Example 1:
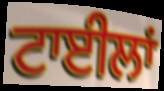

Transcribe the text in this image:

ਟਾਈਲਾਂ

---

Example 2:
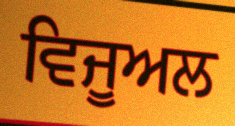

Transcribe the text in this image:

ਵਿਜੂਅਲ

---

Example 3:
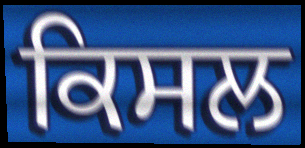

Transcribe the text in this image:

ਕਿਸਲ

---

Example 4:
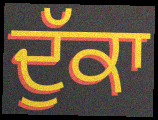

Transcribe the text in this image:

ਦੁੱਕਾ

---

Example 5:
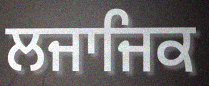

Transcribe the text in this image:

ਲਜਾਜਿਕ